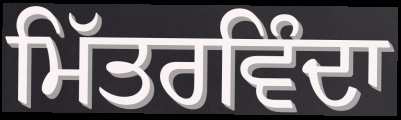
ਮਿੱਤਰਵਿੰਦਾ